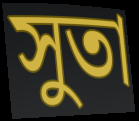
সুতা